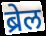
ब्रेल